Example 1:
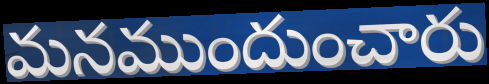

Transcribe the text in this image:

మనముందుంచారు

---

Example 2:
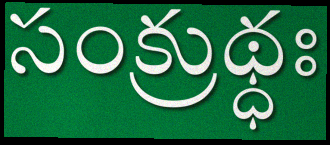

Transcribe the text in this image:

సంక్రుథ్ధః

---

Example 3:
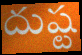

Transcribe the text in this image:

దుష్ట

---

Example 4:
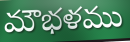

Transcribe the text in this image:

మౌభళము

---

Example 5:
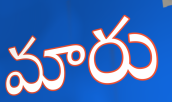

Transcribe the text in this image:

మారు